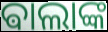
ଵାଲାଙ୍କ